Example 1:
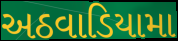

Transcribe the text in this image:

અઠવાડિયામા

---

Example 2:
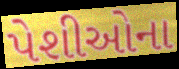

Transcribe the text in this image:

પેશીઓના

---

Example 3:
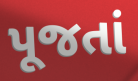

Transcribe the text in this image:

પૂજતાં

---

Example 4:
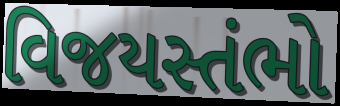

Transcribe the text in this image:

વિજયસ્તંભો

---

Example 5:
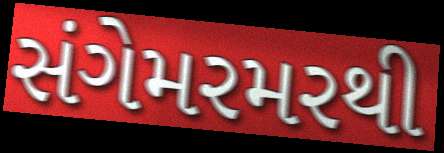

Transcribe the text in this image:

સંગેમરમરથી